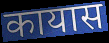
कायास